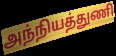
அந்நியத்துணி